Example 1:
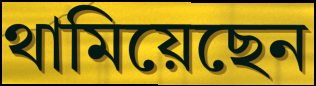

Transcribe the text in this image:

থামিয়েছেন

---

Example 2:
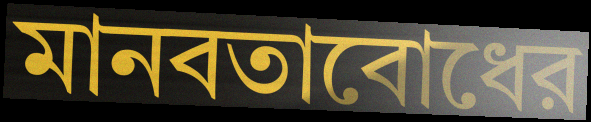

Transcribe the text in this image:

মানবতাবোধের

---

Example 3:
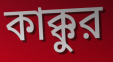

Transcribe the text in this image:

কাক্কুর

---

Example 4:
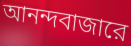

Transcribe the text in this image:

আনন্দবাজারে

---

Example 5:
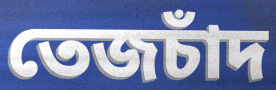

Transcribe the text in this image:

তেজচাঁদ